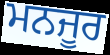
ਮਨਜੂਰ